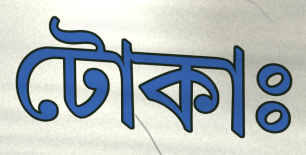
টোকাঃ